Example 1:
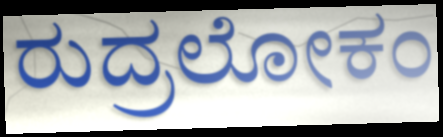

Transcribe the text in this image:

ರುದ್ರಲೋಕಂ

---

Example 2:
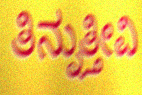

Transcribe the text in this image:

ತಿನ್ನುತ್ತೀವಿ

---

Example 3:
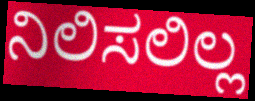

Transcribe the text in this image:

ನಿಲಿಸಲಿಲ್ಲ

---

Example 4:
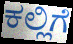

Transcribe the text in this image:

ಕಲ್ಲಿಗೆ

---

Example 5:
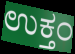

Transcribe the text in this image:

ಉಕ್ತಂ